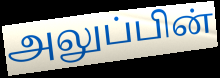
அலுப்பின்